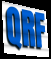
QRF